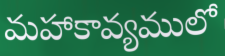
మహాకావ్యములో